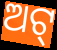
ଅଟ୍